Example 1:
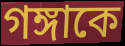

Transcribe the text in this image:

গঙ্গাকে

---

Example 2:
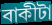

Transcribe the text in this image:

বাকীটা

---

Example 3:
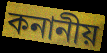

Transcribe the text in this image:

কনানীয়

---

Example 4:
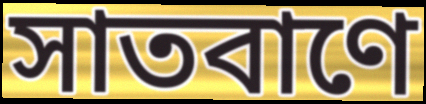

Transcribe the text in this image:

সাতবাণে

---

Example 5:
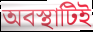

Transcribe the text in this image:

অবস্থাটিই